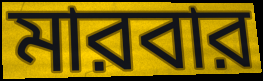
মারবার